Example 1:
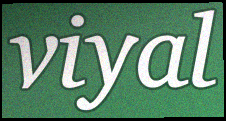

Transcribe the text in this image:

viyal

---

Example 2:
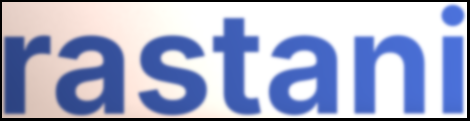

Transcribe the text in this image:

rastani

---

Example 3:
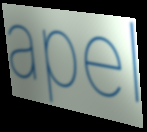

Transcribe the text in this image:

apel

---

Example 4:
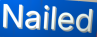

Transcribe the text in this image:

Nailed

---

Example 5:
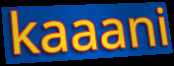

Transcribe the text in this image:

kaaani